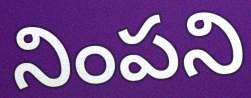
నింపని